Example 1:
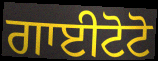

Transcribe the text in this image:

ਗਾਈਟੋਟੋ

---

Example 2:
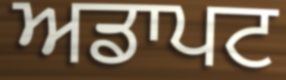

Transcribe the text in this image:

ਅਡਾਪਟ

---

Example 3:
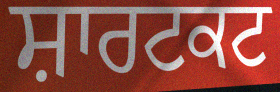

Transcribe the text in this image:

ਸ਼ਾਰਟਕਟ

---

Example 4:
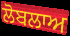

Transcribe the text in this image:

ਲੋਬਲਾਅ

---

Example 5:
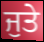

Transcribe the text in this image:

ਜੁਤੇ